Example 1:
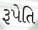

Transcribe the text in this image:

રૂપેતિ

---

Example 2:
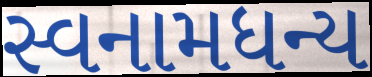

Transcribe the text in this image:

સ્વનામધન્ય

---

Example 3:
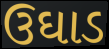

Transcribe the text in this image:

ઉઘાડ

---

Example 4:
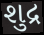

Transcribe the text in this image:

શુદ્ર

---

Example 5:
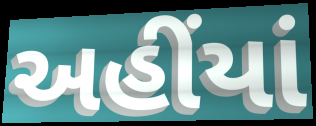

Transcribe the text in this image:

અહીંયાં